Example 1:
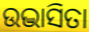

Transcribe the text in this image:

ଉଦ୍ଭାସିତା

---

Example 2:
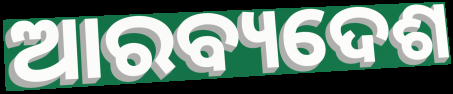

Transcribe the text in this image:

ଆରବ୍ୟଦେଶ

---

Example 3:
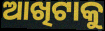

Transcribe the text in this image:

ଆଖିଟାକୁ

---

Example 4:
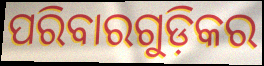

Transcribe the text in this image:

ପରିବାରଗୁଡ଼ିକର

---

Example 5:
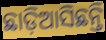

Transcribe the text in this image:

ଛାଡ଼ିଆସିଛନ୍ତି